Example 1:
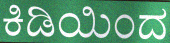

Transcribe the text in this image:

ಕಿಡಿಯಿಂದ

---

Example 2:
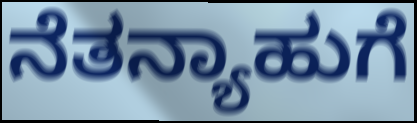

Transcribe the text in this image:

ನೆತನ್ಯಾಹುಗೆ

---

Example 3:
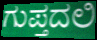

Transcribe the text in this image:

ಗುಪ್ತದಲಿ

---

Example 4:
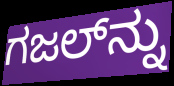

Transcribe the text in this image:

ಗಜಲ್‍ನ್ನು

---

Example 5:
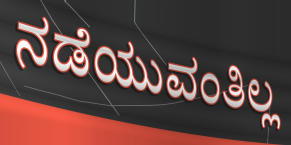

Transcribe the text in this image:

ನಡೆಯುವಂತಿಲ್ಲ